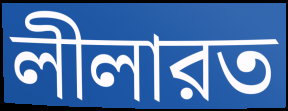
লীলারত